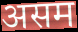
असम